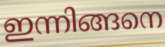
ഇന്നിങ്ങനെ